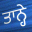
ਤਾਨ੍ਹੇ